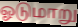
ஓடுமாறு